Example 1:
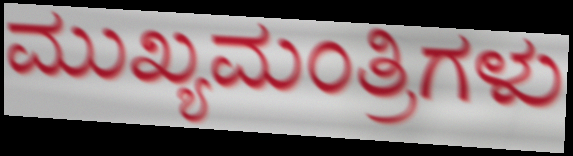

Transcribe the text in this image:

ಮುಖ್ಯಮಂತ್ರಿಗಳು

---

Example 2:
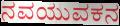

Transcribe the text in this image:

ನವಯುವಕನ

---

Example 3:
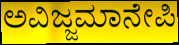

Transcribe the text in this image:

ಅವಿಜ್ಜಮಾನೇಪಿ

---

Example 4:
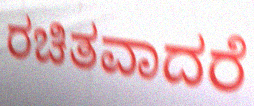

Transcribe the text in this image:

ರಚಿತವಾದರೆ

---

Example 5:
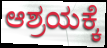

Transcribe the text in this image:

ಆಶ್ರಯಕ್ಕೆ